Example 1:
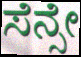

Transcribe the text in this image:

ಸೆನ್ಸೇ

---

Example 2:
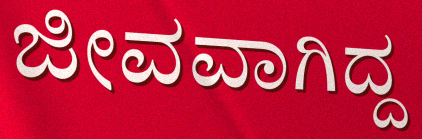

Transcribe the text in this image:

ಜೀವವಾಗಿದ್ದ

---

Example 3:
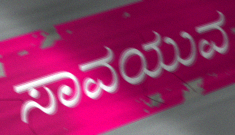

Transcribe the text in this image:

ಸಾವಯುವ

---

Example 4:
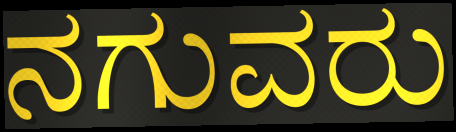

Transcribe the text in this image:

ನಗುವರು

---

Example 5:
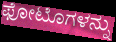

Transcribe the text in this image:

ಫೋಟೊಗಳನ್ನು